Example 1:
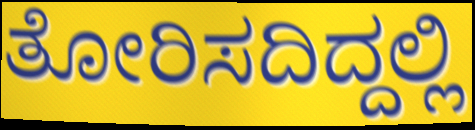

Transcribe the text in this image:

ತೋರಿಸದಿದ್ದಲ್ಲಿ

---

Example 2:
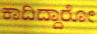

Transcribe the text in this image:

ಕಾದಿದ್ದಾರೋ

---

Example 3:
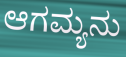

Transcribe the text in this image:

ಆಗಮ್ಯನು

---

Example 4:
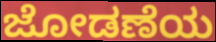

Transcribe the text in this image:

ಜೋಡಣೆಯ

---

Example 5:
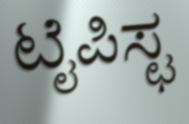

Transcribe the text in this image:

ಟೈಪಿಸ್ಟ